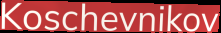
Koschevnikov